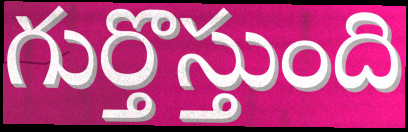
గుర్తొస్తుంది